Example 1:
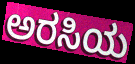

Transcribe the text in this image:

ಅರಸಿಯ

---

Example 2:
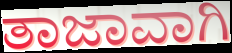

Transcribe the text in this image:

ತಾಜಾವಾಗಿ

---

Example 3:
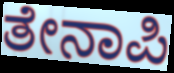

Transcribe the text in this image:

ತೇನಾಪಿ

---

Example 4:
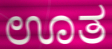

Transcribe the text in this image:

ಊತ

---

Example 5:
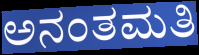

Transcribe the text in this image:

ಅನಂತಮತಿ